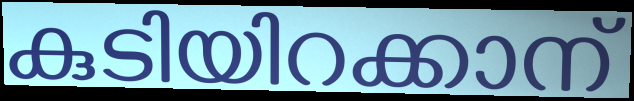
കുടിയിറക്കാന്